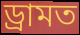
ড্ৰামত